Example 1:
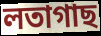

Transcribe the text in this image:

লতাগাছ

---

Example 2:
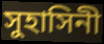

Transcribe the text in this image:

সুহাসিনী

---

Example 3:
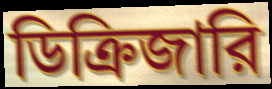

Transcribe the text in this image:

ডিক্রিজারি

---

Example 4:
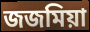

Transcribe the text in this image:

জজমিয়া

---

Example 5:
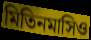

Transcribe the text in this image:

মিতিনমাসিও